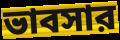
ভাবসার